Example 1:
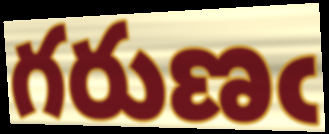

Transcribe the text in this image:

గరుణఁ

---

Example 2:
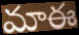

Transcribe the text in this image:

మాఈ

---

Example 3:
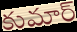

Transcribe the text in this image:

కుమార్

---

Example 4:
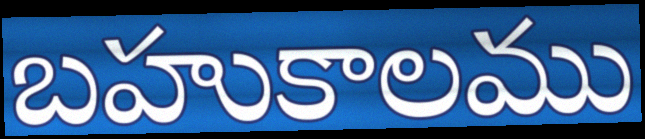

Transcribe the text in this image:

బహుకాలము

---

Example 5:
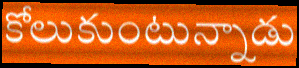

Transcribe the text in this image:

కోలుకుంటున్నాడు